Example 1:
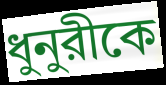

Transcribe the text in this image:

ধুনুরীকে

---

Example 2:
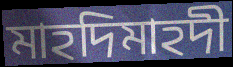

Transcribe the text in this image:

মাহদিমাহদী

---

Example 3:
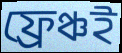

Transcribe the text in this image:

ফ্রেঞ্চই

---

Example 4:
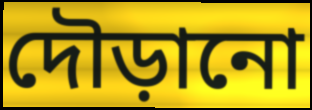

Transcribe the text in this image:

দৌড়ানো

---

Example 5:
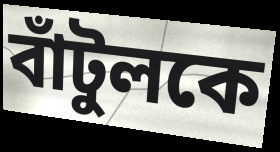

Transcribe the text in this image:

বাঁটুলকে